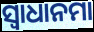
ସ୍ଵାଧାନମା